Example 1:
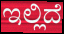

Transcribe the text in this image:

ಇಲ್ಲಿದೆ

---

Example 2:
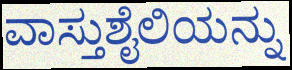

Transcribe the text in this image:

ವಾಸ್ತುಶೈಲಿಯನ್ನು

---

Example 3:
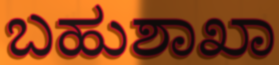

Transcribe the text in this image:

ಬಹುಶಾಖಾ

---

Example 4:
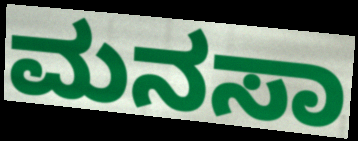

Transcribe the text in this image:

ಮನಸಾ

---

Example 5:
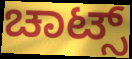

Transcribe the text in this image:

ಚಾಟ್ಸ್